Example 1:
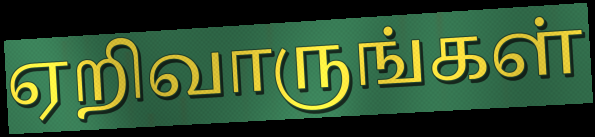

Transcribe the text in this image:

ஏறிவாருங்கள்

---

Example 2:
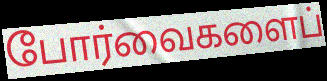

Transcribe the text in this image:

போர்வைகளைப்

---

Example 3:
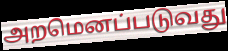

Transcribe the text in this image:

அறமெனப்படுவது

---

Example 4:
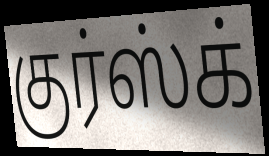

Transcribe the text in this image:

குர்ஸ்க்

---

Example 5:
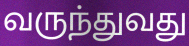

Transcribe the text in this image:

வருந்துவது